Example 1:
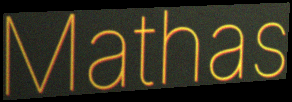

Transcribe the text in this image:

Mathas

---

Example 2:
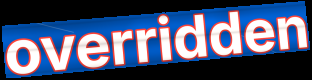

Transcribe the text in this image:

overridden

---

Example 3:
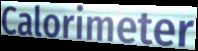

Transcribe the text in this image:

Calorimeter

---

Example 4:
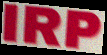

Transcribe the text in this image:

IRP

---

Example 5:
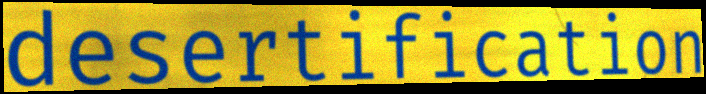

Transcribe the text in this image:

desertification